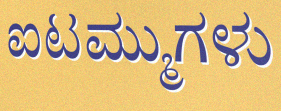
ಐಟಮ್ಮುಗಳು